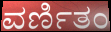
ವರ್ಣಿತಂ